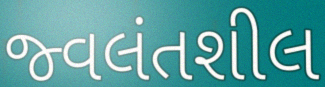
જ્વલંતશીલ